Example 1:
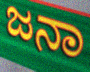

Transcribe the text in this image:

ಜನಾ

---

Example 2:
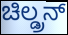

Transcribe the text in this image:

ಚಿಲ್ಡ್ರನ್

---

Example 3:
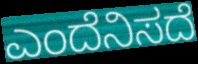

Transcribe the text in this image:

ಎಂದೆನಿಸದೆ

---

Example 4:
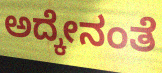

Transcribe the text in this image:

ಅದ್ಕೇನಂತೆ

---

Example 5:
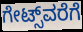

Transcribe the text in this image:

ಗೇಟ್ಸ್‌ವರೆಗೆ